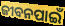
ଜୀବନପାଇଁ